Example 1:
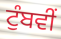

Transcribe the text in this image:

ਟੁੰਬਵੀਂ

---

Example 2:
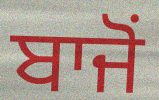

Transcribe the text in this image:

ਬਾਜੋਂ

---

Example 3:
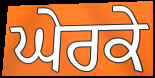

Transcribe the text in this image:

ਘੇਰਕੇ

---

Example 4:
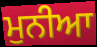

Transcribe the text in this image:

ਮੁਨੀਆ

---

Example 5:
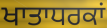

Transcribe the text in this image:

ਖਾਤਾਧਰਕਾਂ